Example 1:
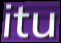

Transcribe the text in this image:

itu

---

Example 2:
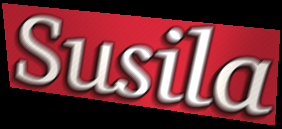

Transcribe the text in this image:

Susila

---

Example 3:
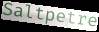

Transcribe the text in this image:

Saltpetre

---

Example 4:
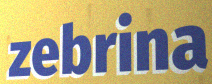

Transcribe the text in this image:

zebrina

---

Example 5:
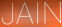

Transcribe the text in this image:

JAIN